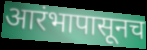
आरंभापासूनच